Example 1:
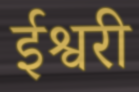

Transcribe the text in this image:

ईश्वरी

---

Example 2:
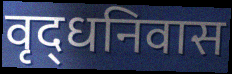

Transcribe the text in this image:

वृद्धनिवास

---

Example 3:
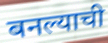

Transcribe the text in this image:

बनल्याची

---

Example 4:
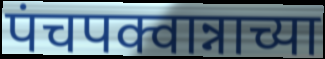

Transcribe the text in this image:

पंचपक्वान्नाच्या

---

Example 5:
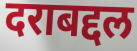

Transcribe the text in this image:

दराबद्दल